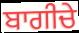
ਬਾਗੀਚੇ